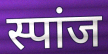
स्पांज